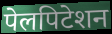
पेलपिटेशन